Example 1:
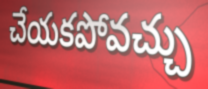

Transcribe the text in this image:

చేయకపోవచ్చు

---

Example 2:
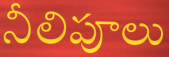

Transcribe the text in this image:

నీలిపూలు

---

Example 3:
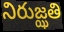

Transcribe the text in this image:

నిరుజ్ఝతి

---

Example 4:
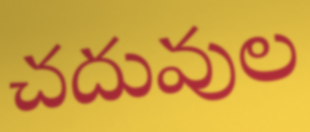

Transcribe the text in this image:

చదువుల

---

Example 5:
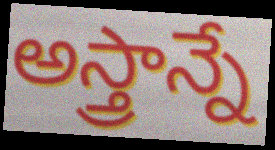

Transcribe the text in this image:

అస్త్రాన్నే